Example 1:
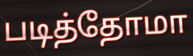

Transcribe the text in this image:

படித்தோமா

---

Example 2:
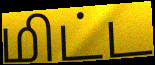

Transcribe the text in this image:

மிட்ட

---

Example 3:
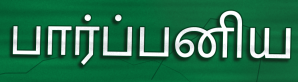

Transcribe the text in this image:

பார்ப்பனிய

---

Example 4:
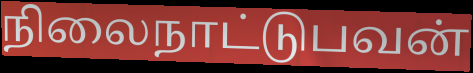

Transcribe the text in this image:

நிலைநாட்டுபவன்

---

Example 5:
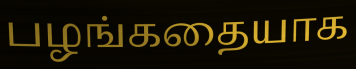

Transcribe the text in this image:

பழங்கதையாக